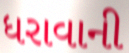
ધરાવાની